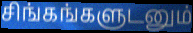
சிங்கங்களுடனும்